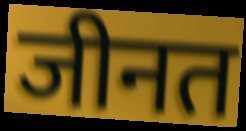
जीनत